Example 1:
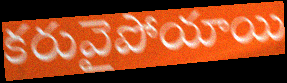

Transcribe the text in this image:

కరువైపోయాయి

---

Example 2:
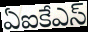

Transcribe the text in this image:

ఏఐకేఎస్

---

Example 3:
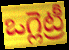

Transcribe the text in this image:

ఒగ్లెట్రీ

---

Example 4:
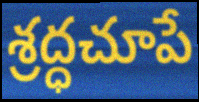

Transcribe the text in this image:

శ్రద్ధచూపే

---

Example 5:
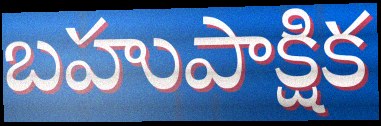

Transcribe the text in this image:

బహుపాక్షిక